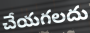
చేయగలదు